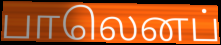
பாலெனப்